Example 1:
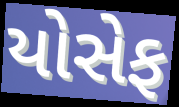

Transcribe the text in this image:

યોસેફ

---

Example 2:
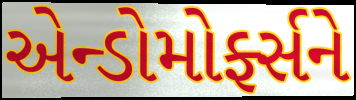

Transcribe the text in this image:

એન્ડોમોર્ફ્સને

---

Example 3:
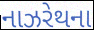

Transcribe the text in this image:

નાઝરેથના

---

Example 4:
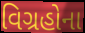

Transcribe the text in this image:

વિગ્રહોના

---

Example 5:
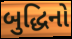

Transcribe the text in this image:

બુદ્ધિનો